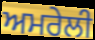
ਅਮਰੇਲੀ